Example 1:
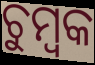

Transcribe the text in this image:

ଚୁମ୍ବକ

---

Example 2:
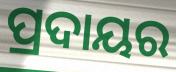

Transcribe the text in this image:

ପ୍ରଦାୟର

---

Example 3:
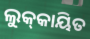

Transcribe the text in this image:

ଲୁକ୍‌କାୟିତ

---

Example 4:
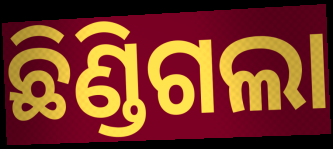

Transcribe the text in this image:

ଛିଣ୍ଡିଗଲା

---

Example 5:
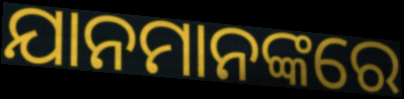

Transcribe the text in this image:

ଯାନମାନଙ୍କରେ